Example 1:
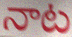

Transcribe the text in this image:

నాట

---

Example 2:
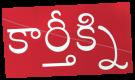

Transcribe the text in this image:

కార్తీక్ని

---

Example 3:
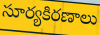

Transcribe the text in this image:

సూర్యకిరణాలు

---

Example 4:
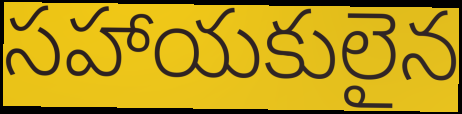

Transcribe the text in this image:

సహాయకులైన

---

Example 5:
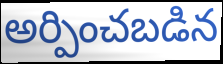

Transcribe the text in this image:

అర్పించబడిన